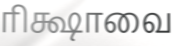
ரிக்ஷாவை